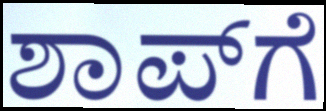
ಶಾಪ್‌ಗೆ